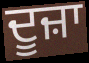
ਦੂਜ਼ਾ